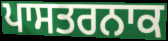
ਪਾਸਤਰਨਾਕ